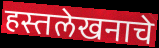
हस्तलेखनाचे